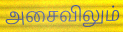
அசைவிலும்